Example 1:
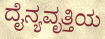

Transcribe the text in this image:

ದೈನ್ಯವೃತ್ತಿಯ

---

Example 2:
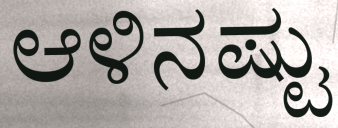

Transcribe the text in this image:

ಆಳಿನಷ್ಟು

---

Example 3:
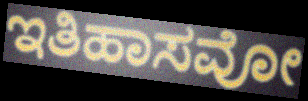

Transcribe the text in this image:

ಇತಿಹಾಸವೋ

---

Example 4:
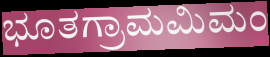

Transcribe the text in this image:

ಭೂತಗ್ರಾಮಮಿಮಂ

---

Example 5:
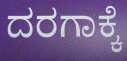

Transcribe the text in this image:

ದರಗಾಕ್ಕೆ